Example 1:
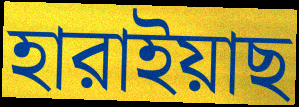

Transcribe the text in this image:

হারাইয়াছ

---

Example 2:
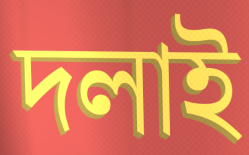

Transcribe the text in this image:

দলাই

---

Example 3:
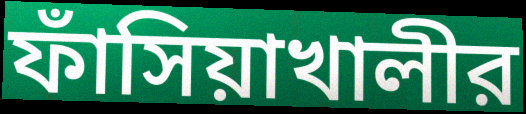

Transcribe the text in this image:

ফাঁসিয়াখালীর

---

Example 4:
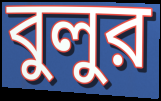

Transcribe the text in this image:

বুলুর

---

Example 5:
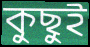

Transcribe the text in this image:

কুছুই